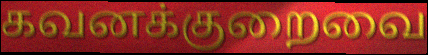
கவனக்குறைவை